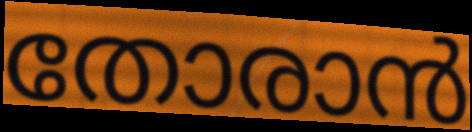
തോരാൻ